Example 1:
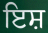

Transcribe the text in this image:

ਇਸ਼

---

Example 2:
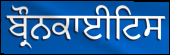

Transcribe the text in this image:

ਬ੍ਰੌਨਕਾਈਟਿਸ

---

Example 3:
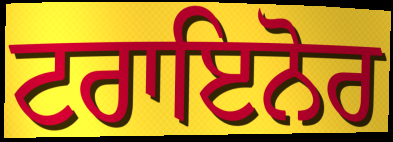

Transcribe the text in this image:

ਟਰਾਇਨੋਰ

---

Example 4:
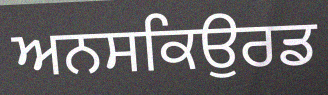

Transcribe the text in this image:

ਅਨਸਕਿਉਰਡ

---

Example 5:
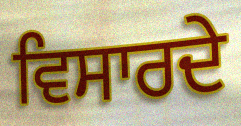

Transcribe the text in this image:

ਵਿਸਾਰਦੇ